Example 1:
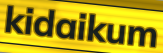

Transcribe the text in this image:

kidaikum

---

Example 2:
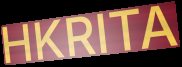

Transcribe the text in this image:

HKRITA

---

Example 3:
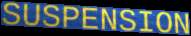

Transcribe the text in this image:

SUSPENSION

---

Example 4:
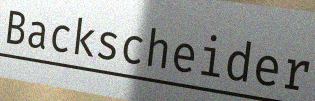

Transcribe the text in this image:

Backscheider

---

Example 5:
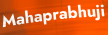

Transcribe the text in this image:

Mahaprabhuji